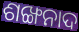
ଶଙ୍ଖନାଦ